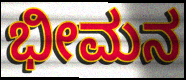
ಭೀಮನ